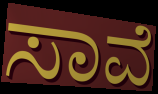
ಸಾವೆ